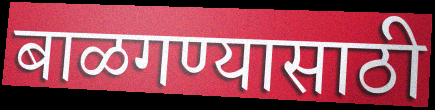
बाळगण्यासाठी